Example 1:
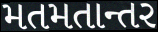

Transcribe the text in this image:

મતમતાન્તર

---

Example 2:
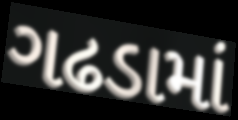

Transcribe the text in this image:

ગઢડામાં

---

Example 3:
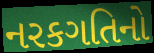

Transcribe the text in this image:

નરકગતિનો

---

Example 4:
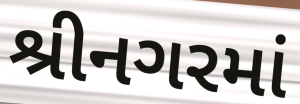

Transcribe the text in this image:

શ્રીનગરમાં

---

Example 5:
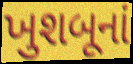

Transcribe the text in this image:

ખુશબૂનાં